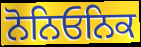
ਨੋਨਿਓਨਿਕ